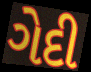
ગેદી